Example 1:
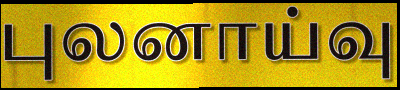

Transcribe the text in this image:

புலனாய்வு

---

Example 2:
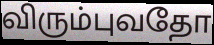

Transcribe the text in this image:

விரும்புவதோ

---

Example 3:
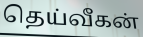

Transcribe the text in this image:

தெய்வீகன்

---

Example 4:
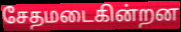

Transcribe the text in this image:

சேதமடைகின்றன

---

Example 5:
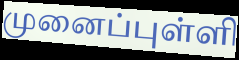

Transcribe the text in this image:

முனைப்புள்ளி